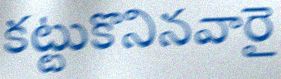
కట్టుకొనినవారై